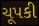
ચૂપકી